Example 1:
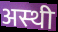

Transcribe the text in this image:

अस्थी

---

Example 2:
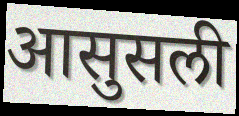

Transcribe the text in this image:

आसुसली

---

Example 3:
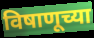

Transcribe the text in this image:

विषाणूच्या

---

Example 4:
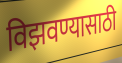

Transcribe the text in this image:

विझवण्यासाठी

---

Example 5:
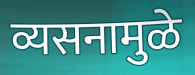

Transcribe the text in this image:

व्यसनामुळे